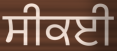
ਸੀਕਈ